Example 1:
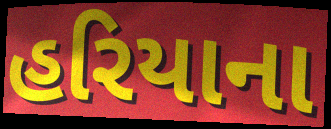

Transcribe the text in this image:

હરિયાના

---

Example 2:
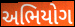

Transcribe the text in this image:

અભિયોગ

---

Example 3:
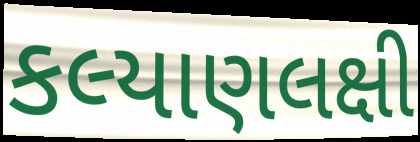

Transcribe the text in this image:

કલ્યાણલક્ષી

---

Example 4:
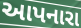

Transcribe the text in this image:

આપનારા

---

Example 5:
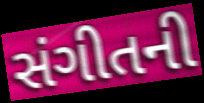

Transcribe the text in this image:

સંગીતની